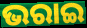
ଭରାଇ